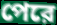
পেরে